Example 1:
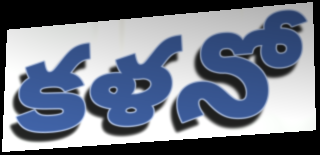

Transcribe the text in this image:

కళనో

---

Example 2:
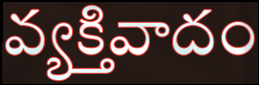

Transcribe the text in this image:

వ్యక్తివాదం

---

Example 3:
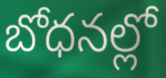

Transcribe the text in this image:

బోధనల్లో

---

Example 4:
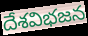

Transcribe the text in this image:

దేశవిభజన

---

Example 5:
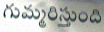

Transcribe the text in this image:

గుమ్మరిస్తుంది